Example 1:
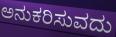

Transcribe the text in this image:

ಅನುಕರಿಸುವದು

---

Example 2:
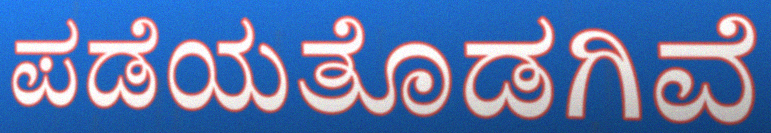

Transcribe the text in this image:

ಪಡೆಯತೊಡಗಿವೆ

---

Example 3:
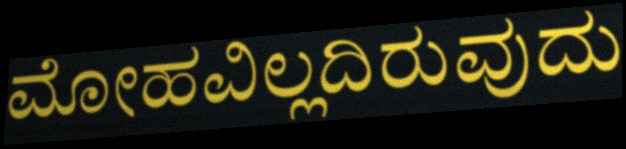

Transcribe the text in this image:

ಮೋಹವಿಲ್ಲದಿರುವುದು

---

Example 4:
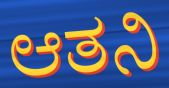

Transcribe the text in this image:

ಆತನಿ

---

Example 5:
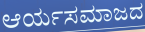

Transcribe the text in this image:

ಆರ್ಯಸಮಾಜದ